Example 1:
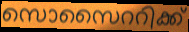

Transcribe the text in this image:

സൊസൈററിക്ക്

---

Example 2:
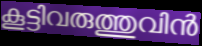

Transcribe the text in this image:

കൂട്ടിവരുത്തുവിൻ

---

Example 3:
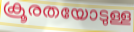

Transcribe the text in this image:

ക്രൂരതയോടുള്ള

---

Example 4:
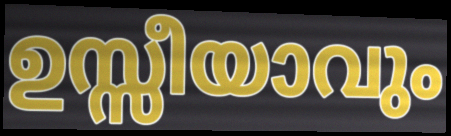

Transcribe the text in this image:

ഉസ്സീയാവും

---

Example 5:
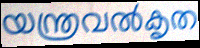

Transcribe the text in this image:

യന്ത്രവൽകൃത